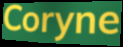
Coryne